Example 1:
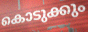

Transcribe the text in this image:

കൊടുക്കും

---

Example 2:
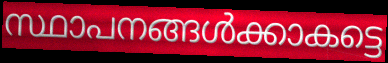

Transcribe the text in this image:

സ്ഥാപനങ്ങൾക്കാകട്ടെ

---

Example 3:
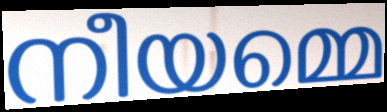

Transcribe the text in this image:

നീയമ്മെ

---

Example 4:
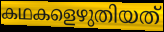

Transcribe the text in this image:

കഥകളെഴുതിയത്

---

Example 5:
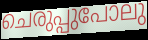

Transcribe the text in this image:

ചെരുപ്പുപോലു